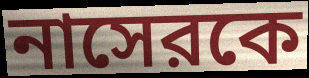
নাসেরকে